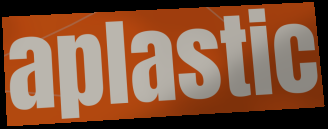
aplastic